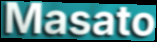
Masato